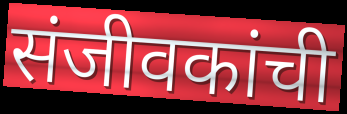
संजीवकांची